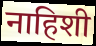
नाहिशी